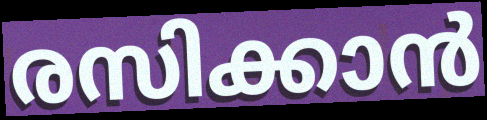
രസിക്കാൻ